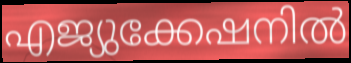
എജ്യുക്കേഷനിൽ